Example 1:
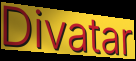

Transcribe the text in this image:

Divatar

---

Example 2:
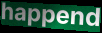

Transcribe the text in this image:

happend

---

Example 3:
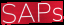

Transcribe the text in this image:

SAPs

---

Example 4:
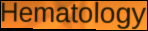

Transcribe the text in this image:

Hematology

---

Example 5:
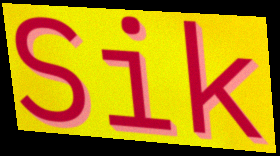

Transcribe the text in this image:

Sik